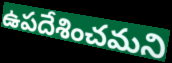
ఉపదేశించమని